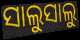
ସାଲୁସାଲୁ